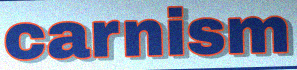
carnism